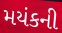
મયંકની